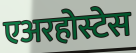
एअरहोस्टेस